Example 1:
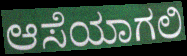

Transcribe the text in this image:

ಆಸೆಯಾಗಲಿ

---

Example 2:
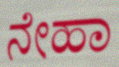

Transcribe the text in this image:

ನೇಹಾ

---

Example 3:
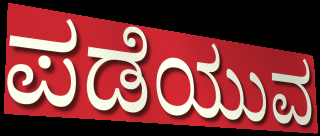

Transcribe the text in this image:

ಪಡೆಯುವ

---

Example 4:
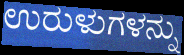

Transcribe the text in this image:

ಉರುಳುಗಳನ್ನು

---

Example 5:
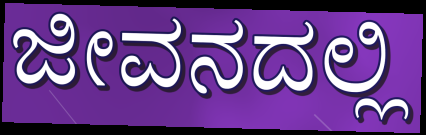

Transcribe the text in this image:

ಜೀವನದಲ್ಲಿ